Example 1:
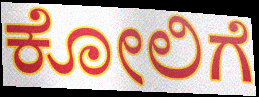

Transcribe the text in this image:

ಕೋಲಿಗೆ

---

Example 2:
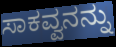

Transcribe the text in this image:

ಸಾಕವ್ವನನ್ನು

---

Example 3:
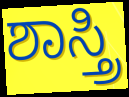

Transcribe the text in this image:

ಶಾಸ್ತ್ರಿ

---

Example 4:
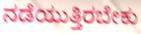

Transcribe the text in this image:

ನಡೆಯುತ್ತಿರಬೇಕು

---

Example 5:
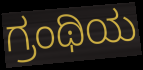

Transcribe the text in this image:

ಗ್ರಂಥಿಯ